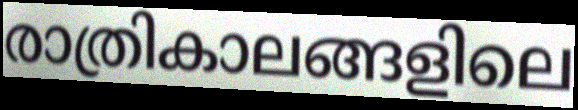
രാത്രികാലങ്ങളിലെ